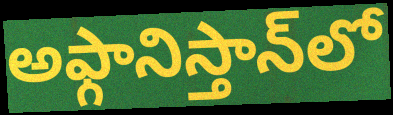
అఫ్గానిస్తాన్‌లో